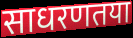
साधरणतया